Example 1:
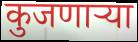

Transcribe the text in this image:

कुजणाऱ्या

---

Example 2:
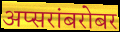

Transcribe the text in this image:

अप्सरांबरोबर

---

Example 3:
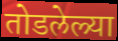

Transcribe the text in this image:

तोडलेल्या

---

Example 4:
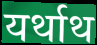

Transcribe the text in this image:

यर्थाथ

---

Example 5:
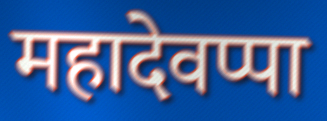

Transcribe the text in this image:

महादेवप्पा